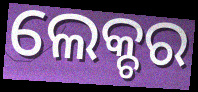
ଲେକ୍ଚର